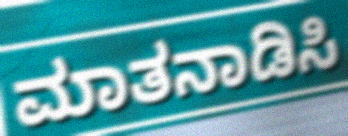
ಮಾತನಾಡಿಸಿ